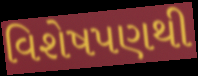
વિશેષપણથી